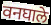
वनघाले